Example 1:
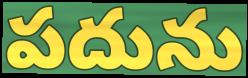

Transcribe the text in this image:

పదును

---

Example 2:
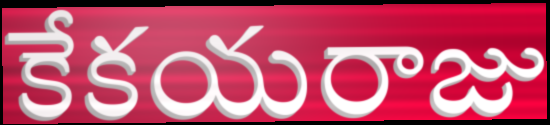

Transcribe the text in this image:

కేకయరాజు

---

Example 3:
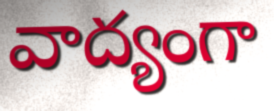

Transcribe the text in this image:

వాద్యంగా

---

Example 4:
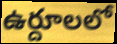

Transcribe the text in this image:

ఉర్దూలలో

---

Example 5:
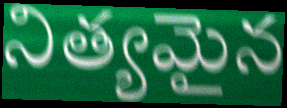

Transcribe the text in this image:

నిత్యమైన